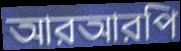
আরআরপি